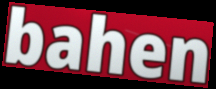
bahen